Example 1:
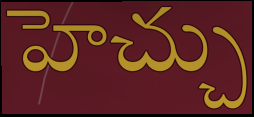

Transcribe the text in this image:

హెచ్చు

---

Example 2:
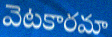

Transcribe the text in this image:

వెటకారమా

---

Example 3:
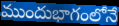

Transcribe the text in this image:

ముందుభాగంలోనే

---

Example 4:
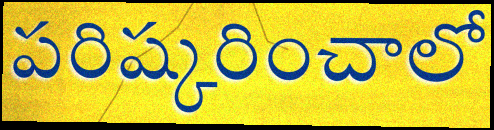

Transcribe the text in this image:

పరిష్కరించాలో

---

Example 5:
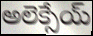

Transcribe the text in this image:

అలెక్సేయ్